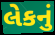
લેકનું